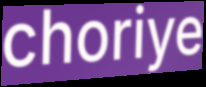
choriye